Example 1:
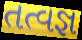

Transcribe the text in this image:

તત્વજ્ઞ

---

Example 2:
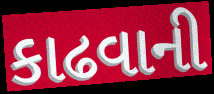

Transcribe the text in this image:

કાઢવાની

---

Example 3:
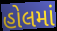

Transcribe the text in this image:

હોલમાં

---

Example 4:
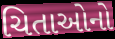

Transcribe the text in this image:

ચિતાઓનો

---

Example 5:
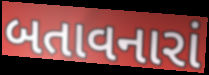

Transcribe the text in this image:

બતાવનારાં